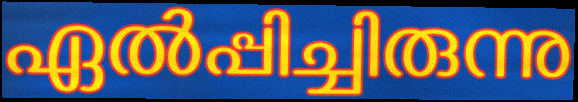
ഏൽപ്പിച്ചിരുന്നു